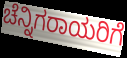
ಚೆನ್ನಿಗರಾಯರಿಗೆ